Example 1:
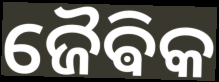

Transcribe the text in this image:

ଜୈଵିକ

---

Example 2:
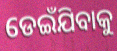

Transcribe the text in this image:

ଡେଇଁଯିବାକୁ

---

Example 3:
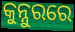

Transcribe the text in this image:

କୁନ୍ନୁରରେ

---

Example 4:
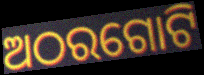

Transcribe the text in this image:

ଅଠରଗୋଟି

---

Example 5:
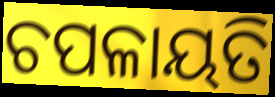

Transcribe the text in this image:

ଚପଳାୟତି